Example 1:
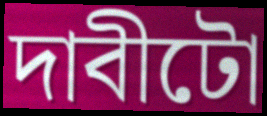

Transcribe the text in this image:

দাবীটো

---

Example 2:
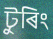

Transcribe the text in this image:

টুৰিং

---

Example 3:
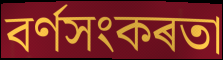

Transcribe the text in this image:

বৰ্ণসংকৰতা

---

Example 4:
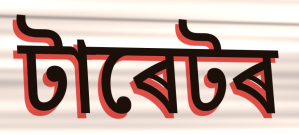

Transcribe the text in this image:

টাৰেটৰ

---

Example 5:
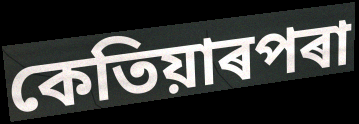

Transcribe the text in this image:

কেতিয়াৰপৰা